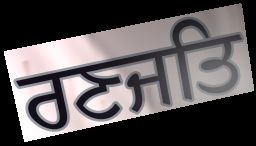
ਰਣਜਤਿ